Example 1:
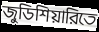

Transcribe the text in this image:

জুডিশিয়ারিতে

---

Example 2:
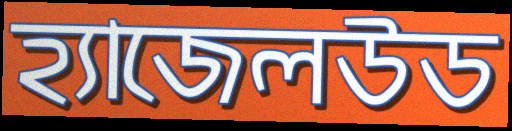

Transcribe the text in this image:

হ্যাজেলউড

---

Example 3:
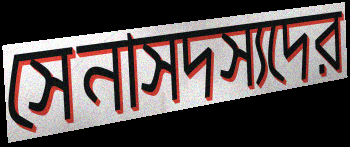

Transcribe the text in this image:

সেনাসদস্যদের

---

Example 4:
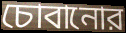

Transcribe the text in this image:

চোবানোর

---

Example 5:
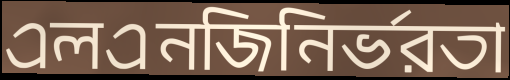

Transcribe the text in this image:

এলএনজিনির্ভরতা